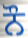
ਨੌ